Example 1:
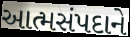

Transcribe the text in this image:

આત્મસંપદાને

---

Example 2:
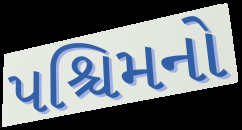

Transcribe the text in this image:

પશ્ચિમનો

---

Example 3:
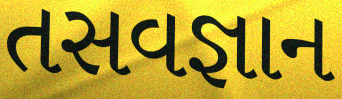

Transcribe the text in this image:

તસવજ્ઞાન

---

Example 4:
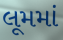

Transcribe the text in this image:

લૂમમાં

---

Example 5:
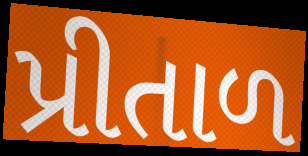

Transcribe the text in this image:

પ્રીતાળ